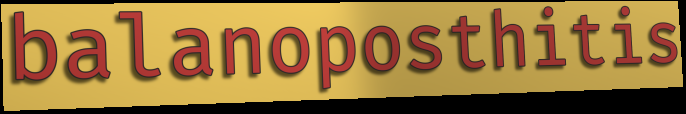
balanoposthitis